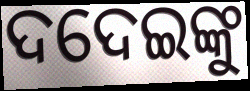
ଦଦେଇଙ୍କୁ